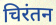
चिरंतन